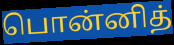
பொன்னித்